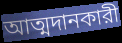
আত্মদানকারী